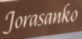
Jorasanko